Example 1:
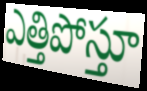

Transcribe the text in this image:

ఎత్తిపోస్తూ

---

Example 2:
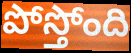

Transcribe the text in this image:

పోస్తోంది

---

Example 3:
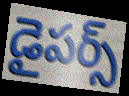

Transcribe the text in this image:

డైపర్స్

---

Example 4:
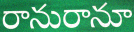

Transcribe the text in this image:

రానురానూ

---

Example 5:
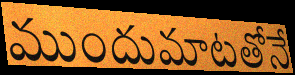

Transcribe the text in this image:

ముందుమాటతోనే